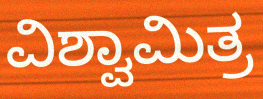
ವಿಶ್ವಾಮಿತ್ರ